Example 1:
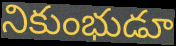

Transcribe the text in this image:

నికుంభుడూ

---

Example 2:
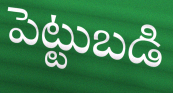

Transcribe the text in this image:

పెట్టుబడి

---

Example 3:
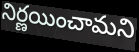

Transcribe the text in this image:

నిర్ణయించామని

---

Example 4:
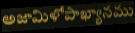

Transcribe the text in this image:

అజామిళోపాఖ్యానము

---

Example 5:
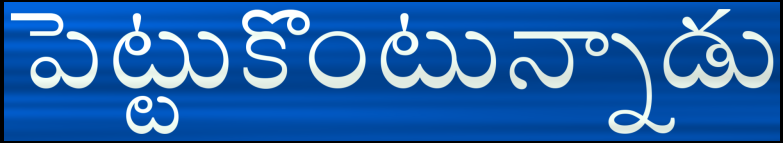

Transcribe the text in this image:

పెట్టుకొంటున్నాడు